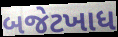
બજેટખાધ